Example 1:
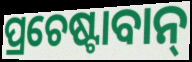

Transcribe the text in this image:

ପ୍ରଚେଷ୍ଟାବାନ୍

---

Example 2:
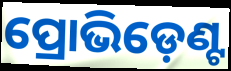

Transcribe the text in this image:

ପ୍ରୋଭିଡ଼େଣ୍ଟ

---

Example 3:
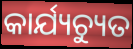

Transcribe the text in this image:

କାର୍ଯ୍ୟଚ୍ୟୁତ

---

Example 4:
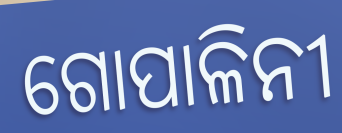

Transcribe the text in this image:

ଗୋପାଳିନୀ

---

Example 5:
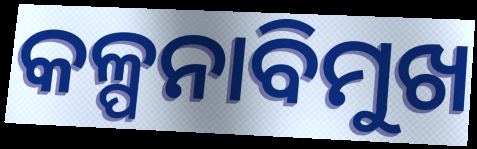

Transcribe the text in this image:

କଳ୍ପନାବିମୁଖ